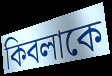
কিবলাকে